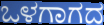
ಒಳಗಾಗದ